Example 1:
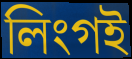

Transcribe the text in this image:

লিংগই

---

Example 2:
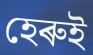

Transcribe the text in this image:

হেৰুই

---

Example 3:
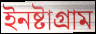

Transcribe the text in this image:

ইনষ্টাগ্ৰাম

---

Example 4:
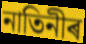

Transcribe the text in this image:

নাতিনীৰ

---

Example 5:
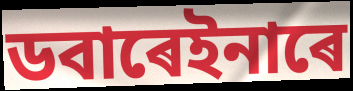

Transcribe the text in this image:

ডবাৰেইনাৰে